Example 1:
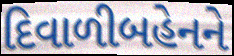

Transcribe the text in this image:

દિવાળીબહેનને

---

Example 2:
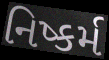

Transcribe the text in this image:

નિષ્કર્મ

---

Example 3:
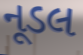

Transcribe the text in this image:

નૂડલ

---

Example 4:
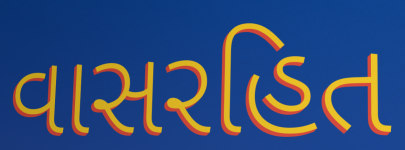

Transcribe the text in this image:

વાસરહિત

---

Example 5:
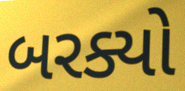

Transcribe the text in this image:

બરક્યો